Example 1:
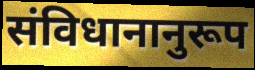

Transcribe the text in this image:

संविधानानुरूप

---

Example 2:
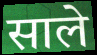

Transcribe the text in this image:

साले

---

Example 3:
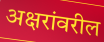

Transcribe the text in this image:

अक्षरांवरील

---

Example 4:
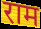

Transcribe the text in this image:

राम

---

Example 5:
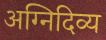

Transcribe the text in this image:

अग्निदिव्य